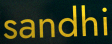
sandhi